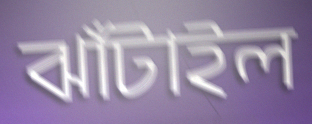
ঝাঁটাইল